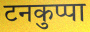
टनकुप्पा